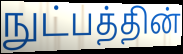
நுட்பத்தின்